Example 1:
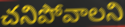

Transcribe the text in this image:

చనిపోవాలని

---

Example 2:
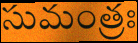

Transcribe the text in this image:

సుమంత్రః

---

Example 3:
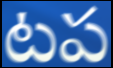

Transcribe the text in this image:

టప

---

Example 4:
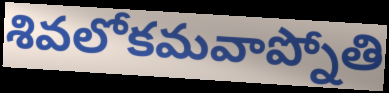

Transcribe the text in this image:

శివలోకమవాప్నోతి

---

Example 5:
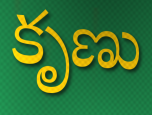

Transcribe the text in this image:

కృణు